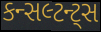
કન્સલ્ટન્ટ્સ